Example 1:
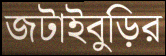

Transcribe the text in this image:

জটাইবুড়ির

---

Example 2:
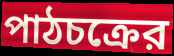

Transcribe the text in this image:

পাঠচক্রের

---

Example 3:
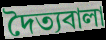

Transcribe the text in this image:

দৈত্যবালা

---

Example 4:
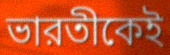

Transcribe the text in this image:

ভারতীকেই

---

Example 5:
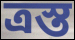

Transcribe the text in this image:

ত্রস্ত